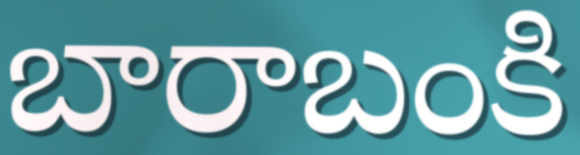
బారాబంకి